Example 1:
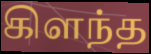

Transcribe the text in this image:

கிளந்த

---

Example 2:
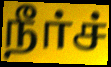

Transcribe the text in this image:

நீர்ச்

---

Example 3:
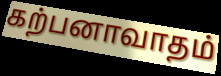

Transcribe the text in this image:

கற்பனாவாதம்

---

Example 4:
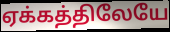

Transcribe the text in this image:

ஏக்கத்திலேயே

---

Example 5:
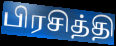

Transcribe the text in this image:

பிரசித்தி